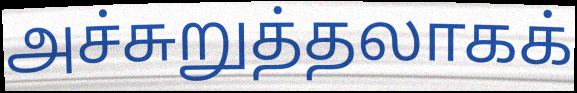
அச்சுறுத்தலாகக்